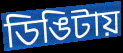
ডিঙিটায়